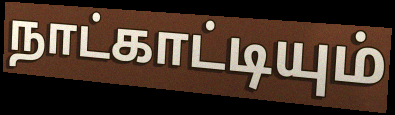
நாட்காட்டியும்